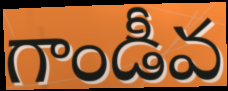
గాండీవ